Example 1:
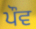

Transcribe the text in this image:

ਪੌਵ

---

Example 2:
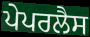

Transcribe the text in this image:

ਪੇਪਰਲੈਸ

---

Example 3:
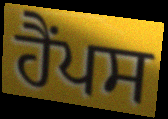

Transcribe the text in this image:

ਹੈਂਪਸ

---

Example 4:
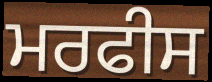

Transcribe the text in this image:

ਮਰਫੀਸ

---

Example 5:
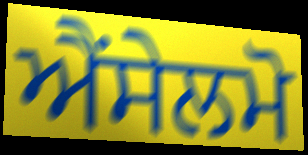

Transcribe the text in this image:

ਐਂਸੇਲਮੋ